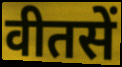
वीतसें